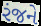
રંજને